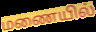
மணையில்